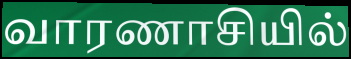
வாரணாசியில்